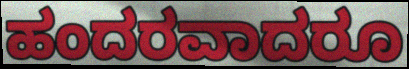
ಹಂದರವಾದರೂ